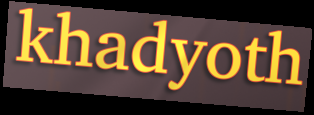
khadyoth